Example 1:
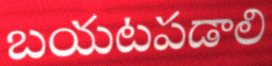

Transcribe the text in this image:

బయటపడాలి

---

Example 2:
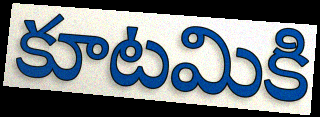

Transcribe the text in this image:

కూటమికి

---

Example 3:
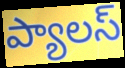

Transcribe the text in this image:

ప్యాలస్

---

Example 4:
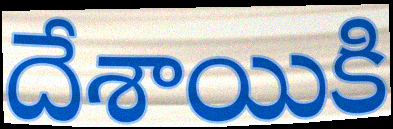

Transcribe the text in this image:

దేశాయికి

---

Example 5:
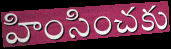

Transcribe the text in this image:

హింసించకు